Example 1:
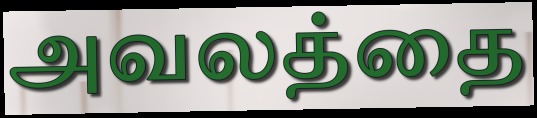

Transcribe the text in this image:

அவலத்தை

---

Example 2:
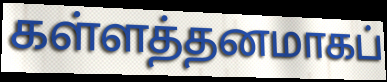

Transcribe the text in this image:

கள்ளத்தனமாகப்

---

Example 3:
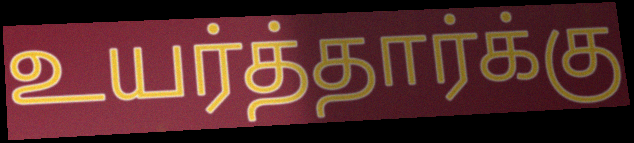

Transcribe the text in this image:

உயர்த்தார்க்கு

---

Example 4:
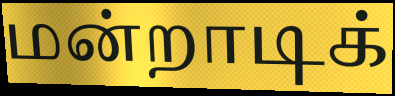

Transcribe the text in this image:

மன்றாடிக்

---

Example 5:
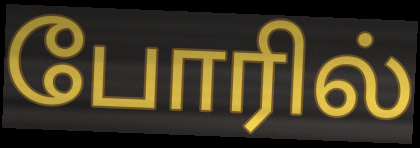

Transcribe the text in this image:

போரில்